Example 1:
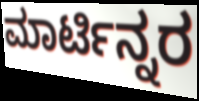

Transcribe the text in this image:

ಮಾರ್ಟಿನ್ನರ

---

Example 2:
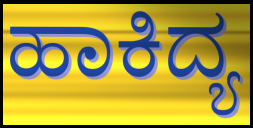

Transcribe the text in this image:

ಹಾಕಿದ್ಯ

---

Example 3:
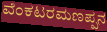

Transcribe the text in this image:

ವೆಂಕಟರಮಣಪ್ಪನ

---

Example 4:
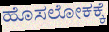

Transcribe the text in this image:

ಹೊಸಲೋಕಕ್ಕೆ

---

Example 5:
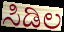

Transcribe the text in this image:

ಸಿಡಿಲ